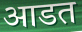
आडत